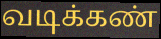
வடிக்கண்